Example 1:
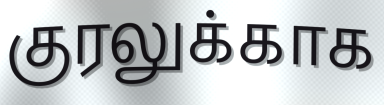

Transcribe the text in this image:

குரலுக்காக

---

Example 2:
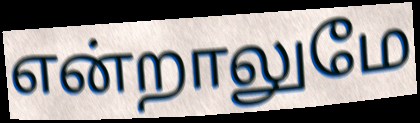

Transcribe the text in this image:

என்றாலுமே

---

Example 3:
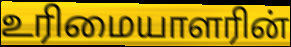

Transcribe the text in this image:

உரிமையாளரின்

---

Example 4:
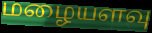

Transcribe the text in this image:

மழையளவு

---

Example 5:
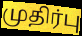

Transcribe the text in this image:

முதிர்பு